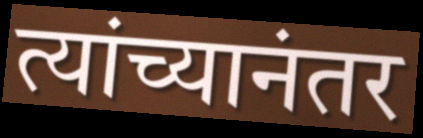
त्यांच्यानंतर